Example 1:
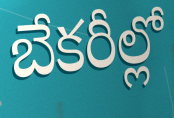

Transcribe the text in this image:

బేకరీల్లో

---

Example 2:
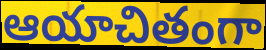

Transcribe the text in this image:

ఆయాచితంగా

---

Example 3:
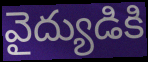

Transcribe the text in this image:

వైద్యుడికి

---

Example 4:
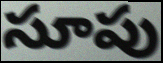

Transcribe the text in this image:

సూపు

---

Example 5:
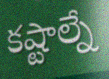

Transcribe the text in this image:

కష్టాల్నే